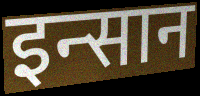
इन्सान